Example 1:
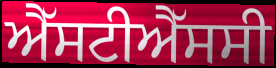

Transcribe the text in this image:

ਐੱਸਟੀਐੱਸਸੀ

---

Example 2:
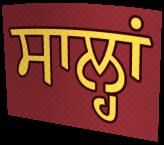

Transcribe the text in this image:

ਸਾਲ੍ਹਾਂ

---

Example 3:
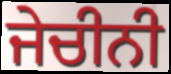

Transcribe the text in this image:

ਜੇਚੀਨੀ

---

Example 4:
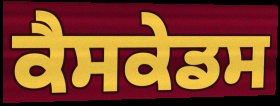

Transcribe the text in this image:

ਕੈਸਕੇਡਸ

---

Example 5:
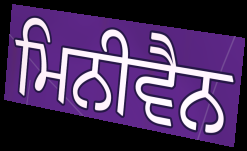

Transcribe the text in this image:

ਮਿਨੀਵੈਨ